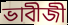
ভাবীজী